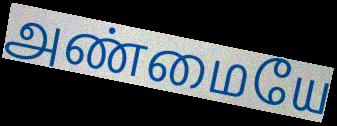
அண்மையே